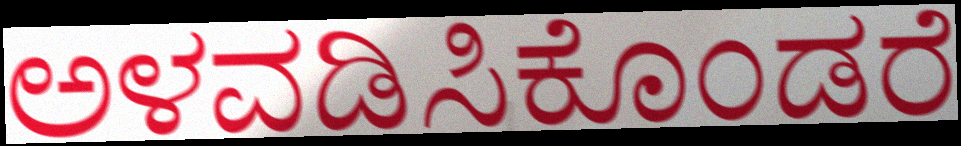
ಅಳವಡಿಸಿಕೊಂಡರೆ